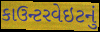
કાઉન્ટરવેઇટનું